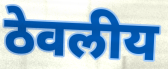
ठेवलीय